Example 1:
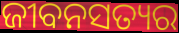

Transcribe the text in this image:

ଜୀବନସତ୍ୟର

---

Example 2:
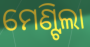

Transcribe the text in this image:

ମେଣ୍ଟିଲା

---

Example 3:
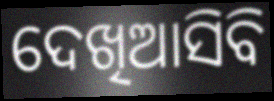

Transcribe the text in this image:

ଦେଖିଆସିବି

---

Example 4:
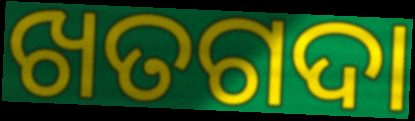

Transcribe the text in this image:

ଖତଗଦା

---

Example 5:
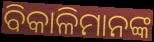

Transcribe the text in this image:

ବିକାଳିମାନଙ୍କ